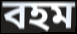
বহম